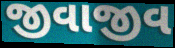
જીવાજીવ